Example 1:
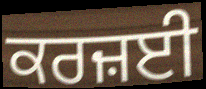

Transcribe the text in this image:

ਕਰਜ਼ਈ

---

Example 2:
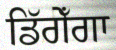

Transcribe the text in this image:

ਡਿੱਗੇਁਗਾ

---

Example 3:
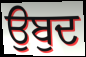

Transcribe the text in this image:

ਉਬੁਦ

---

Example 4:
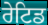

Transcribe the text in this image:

ਰੇਟਿਡ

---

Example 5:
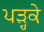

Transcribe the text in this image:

ਪੜ੍ਹਕੇ